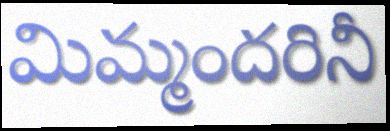
మిమ్మందరినీ